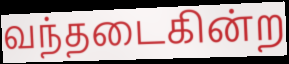
வந்தடைகின்ற